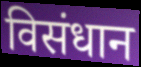
विसंधान